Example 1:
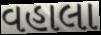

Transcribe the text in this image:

વહાલા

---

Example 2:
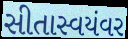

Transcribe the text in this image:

સીતાસ્વયંવર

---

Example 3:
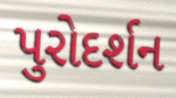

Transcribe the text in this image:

પુરોદર્શન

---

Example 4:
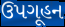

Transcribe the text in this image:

ઉપગૂહન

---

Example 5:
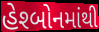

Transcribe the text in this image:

હેશ્બોનમાંથી